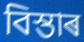
বিস্তাৰ